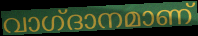
വാഗ്‌ദാനമാണ്